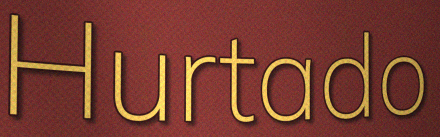
Hurtado